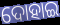
ଦୋହାଇ